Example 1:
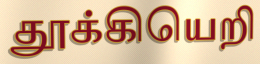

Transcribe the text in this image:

தூக்கியெறி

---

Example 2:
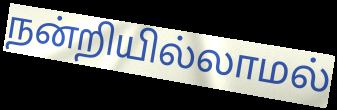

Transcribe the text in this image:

நன்றியில்லாமல்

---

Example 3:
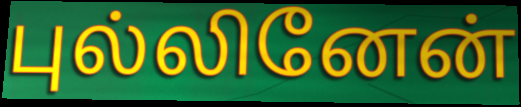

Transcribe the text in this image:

புல்லினேன்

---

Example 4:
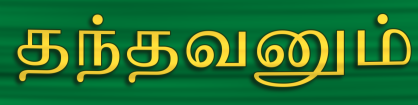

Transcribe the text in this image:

தந்தவனும்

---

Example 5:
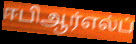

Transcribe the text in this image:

ஈபிஆர்எல்ப்